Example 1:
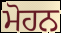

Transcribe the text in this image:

ਮੋਹਨ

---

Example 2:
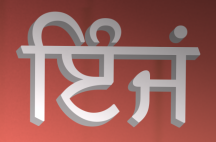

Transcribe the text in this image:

ਇੰਜਂ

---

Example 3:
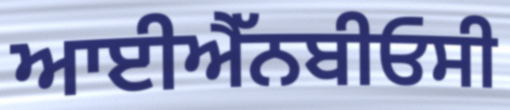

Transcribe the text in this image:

ਆਈਐੱਨਬੀਓਸੀ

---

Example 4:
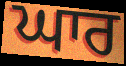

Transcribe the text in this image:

ਘਾਰ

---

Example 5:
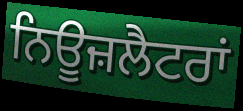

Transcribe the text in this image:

ਨਿਊਜ਼ਲੈਟਰਾਂ